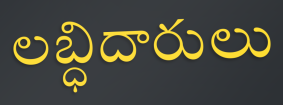
లబ్ధిదారులు